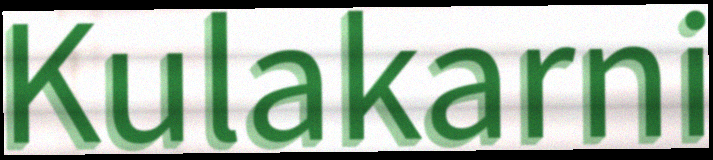
Kulakarni